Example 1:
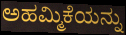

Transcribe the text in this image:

ಅಹಮ್ಮಿಕೆಯನ್ನು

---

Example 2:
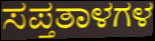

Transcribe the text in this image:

ಸಪ್ತತಾಳಗಳ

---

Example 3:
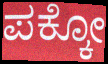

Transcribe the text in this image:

ಪಕ್ಕೋ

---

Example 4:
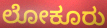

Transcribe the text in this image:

ಲೋಕೂರು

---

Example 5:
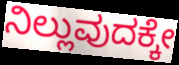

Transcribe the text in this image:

ನಿಲ್ಲುವುದಕ್ಕೇ